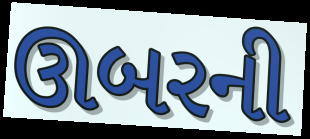
ઊબરની